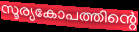
സൂര്യകോപത്തിന്റെ